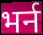
भर्न